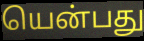
யென்பது